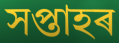
সপ্তাহৰ